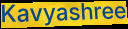
Kavyashree